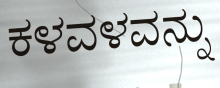
ಕಳವಳವನ್ನು